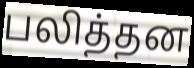
பலித்தன